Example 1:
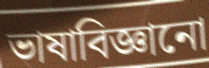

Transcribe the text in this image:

ভাষাবিজ্ঞানো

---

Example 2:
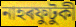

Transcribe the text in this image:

নাহৰফুটুকী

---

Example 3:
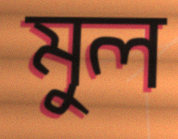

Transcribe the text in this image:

মুল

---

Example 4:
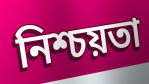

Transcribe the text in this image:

নিশ্চয়তা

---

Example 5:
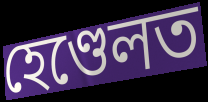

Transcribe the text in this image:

হেণ্ডেলত